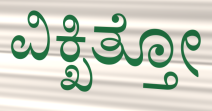
ವಿಕ್ಖಿತ್ತೋ